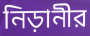
নিড়ানীর